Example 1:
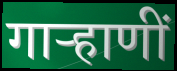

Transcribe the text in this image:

गाऱ्हाणीं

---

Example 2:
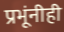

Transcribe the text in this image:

प्रभूंनीही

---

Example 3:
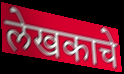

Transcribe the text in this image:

लेखकाचे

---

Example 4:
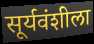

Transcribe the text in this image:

सूर्यवंशीला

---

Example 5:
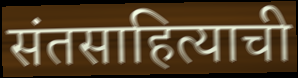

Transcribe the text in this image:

संतसाहित्याची